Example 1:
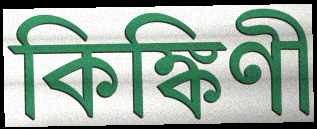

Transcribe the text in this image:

কিঙ্কিণী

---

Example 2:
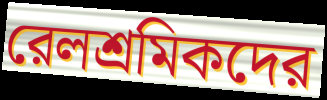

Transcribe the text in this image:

রেলশ্রমিকদের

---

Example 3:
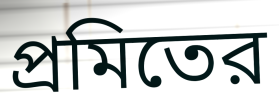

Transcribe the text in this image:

প্রমিতের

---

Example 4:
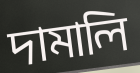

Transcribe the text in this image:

দামালি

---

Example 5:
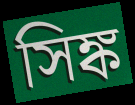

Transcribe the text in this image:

সিঙ্ক